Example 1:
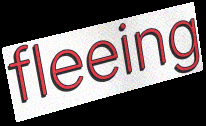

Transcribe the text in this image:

fleeing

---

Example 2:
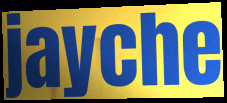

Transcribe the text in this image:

jayche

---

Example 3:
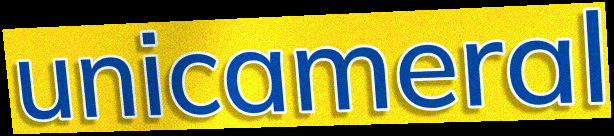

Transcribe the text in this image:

unicameral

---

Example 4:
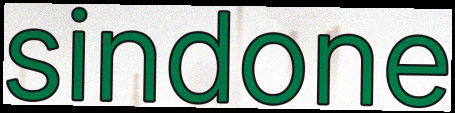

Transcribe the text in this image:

sindone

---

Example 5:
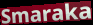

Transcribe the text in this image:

Smaraka